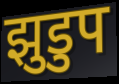
झुडुप